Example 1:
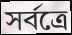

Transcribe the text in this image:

সৰ্বত্ৰে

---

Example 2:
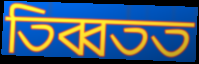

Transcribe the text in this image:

তিব্বতত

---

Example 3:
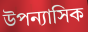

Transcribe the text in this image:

উপন্যাসিক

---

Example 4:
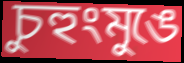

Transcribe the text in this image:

চুহুংমুঙে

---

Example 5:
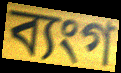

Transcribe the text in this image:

ব্যংগ